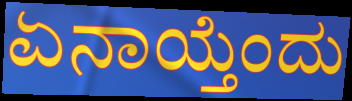
ಏನಾಯ್ತೆಂದು